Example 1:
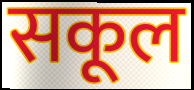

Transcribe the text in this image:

सकूल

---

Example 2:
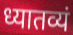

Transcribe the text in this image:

ध्यातव्यं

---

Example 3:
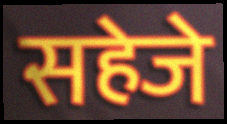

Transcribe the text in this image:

सहेजे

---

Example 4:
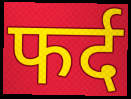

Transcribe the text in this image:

फर्द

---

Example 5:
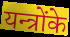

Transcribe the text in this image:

यन्त्रोंके